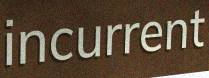
incurrent